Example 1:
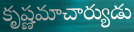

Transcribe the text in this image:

కృష్ణమాచార్యుడు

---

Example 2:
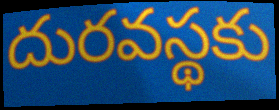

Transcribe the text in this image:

దురవస్థకు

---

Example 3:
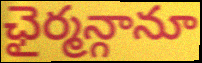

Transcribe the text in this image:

ఛైర్మన్గానూ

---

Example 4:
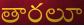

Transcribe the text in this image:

తారలూ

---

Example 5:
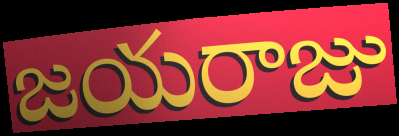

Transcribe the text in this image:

జయరాజు